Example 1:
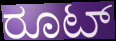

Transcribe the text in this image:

ರೂಟ್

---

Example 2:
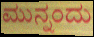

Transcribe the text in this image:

ಮುನ್ನಂದು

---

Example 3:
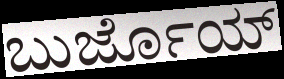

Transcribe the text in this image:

ಬುರ್ಜೊಯ್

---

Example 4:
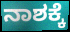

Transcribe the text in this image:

ನಾಶಕ್ಕೆ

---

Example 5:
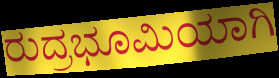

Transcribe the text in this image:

ರುದ್ರಭೂಮಿಯಾಗಿ